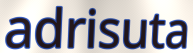
adrisuta